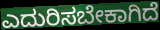
ಎದುರಿಸಬೇಕಾಗಿದೆ